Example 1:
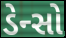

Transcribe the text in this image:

ડેન્સો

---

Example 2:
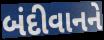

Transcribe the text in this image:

બંદીવાનને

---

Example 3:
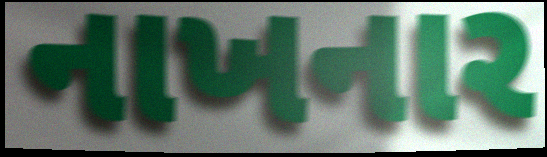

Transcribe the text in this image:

નાખનાર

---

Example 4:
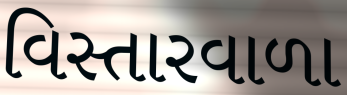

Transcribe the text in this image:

વિસ્તારવાળા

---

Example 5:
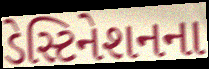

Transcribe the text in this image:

ડેસ્ટિનેશનના